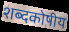
शब्दकोषीय